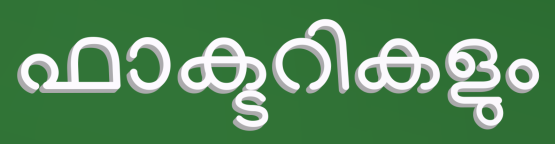
ഫാക്ടറികളും